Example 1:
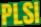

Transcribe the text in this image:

PLSI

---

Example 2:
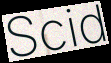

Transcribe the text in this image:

Scid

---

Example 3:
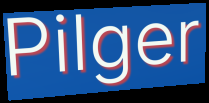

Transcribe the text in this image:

Pilger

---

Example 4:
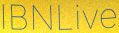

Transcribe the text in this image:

IBNLive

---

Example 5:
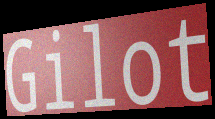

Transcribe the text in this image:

Gilot